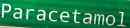
Paracetamol